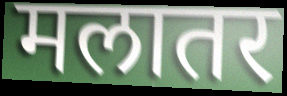
मलातर